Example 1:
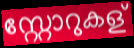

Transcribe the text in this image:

സ്റ്റോറുകള്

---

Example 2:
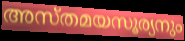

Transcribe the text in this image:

അസ്തമയസൂര്യനും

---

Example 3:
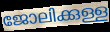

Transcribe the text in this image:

ജോലിക്കുള്ള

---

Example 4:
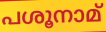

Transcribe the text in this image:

പശൂനാമ്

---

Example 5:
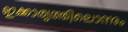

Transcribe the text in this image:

ഇക്കാര്യത്തിലൊന്നും